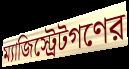
ম্যাজিস্ট্রেটগণের